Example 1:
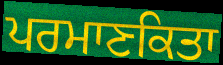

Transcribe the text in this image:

ਪਰਮਾਣਕਿਤਾ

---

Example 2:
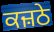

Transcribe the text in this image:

ਕਜ਼ਠੇ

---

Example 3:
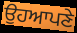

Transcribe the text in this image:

ਉਹਆਪਣੇ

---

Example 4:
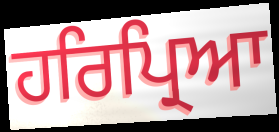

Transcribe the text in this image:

ਹਰਿਪ੍ਰਿਆ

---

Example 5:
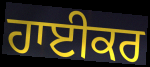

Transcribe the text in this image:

ਹਾਈਕਰ